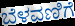
ಬೆಳವಣಿಗೆ